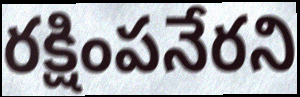
రక్షింపనేరని